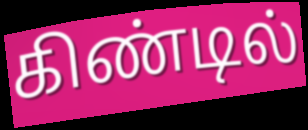
கிண்டில்